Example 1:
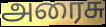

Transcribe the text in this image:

அரைசு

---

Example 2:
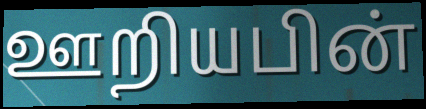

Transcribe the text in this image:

ஊறியபின்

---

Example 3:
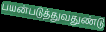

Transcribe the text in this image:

பயன்படுத்துவதுண்டு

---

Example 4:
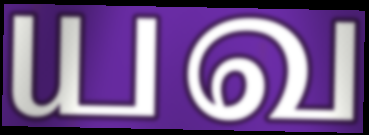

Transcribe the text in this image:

யவ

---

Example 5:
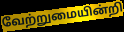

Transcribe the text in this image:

வேற்றுமையின்றி